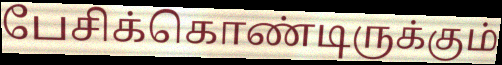
பேசிக்கொண்டிருக்கும்